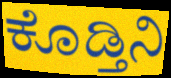
ಕೊಡ್ತಿನಿ